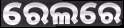
ରେଲରେ